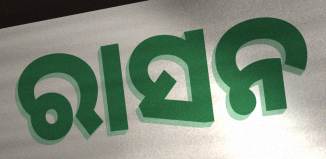
ରାସନ